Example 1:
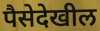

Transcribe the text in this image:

पैसेदेखील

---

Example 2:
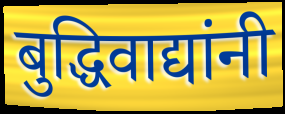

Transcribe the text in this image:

बुद्धिवाद्यांनी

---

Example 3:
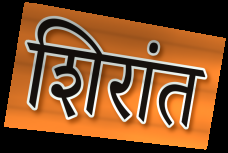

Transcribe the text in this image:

शिरांत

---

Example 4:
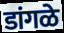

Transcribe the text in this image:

डांगळे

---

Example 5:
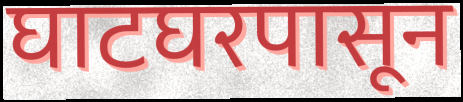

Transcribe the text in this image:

घाटघरपासून